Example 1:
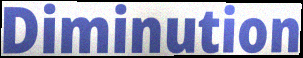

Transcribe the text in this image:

Diminution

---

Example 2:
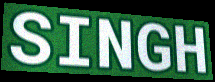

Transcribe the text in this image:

SINGH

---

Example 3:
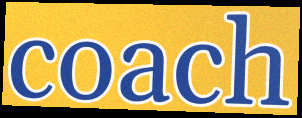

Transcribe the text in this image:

coach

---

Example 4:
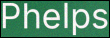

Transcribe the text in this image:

Phelps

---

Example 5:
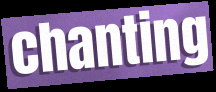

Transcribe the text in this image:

chanting